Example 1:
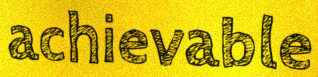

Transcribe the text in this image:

achievable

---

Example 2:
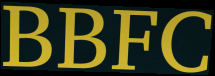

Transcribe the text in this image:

BBFC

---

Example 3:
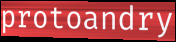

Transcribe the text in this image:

protoandry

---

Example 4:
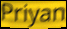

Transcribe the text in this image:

Priyan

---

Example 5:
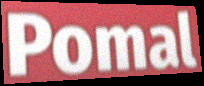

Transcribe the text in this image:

Pomal